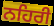
ਨਹਿਰੀ